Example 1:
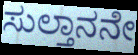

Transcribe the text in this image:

ಸುಲ್ತಾನನೇ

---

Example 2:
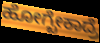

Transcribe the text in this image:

ಹೋಗ್ಬೇಕಾದ್ರೆ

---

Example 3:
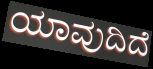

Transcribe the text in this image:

ಯಾವುದಿದೆ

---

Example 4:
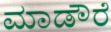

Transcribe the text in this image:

ಮಾಡೌರೆ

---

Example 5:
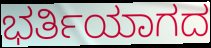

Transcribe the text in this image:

ಭರ್ತಿಯಾಗದ